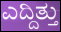
ಎದ್ದಿತ್ತು